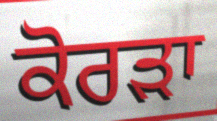
ਕੋਰੜਾ